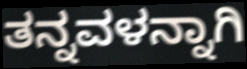
ತನ್ನವಳನ್ನಾಗಿ